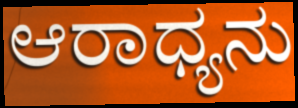
ಆರಾಧ್ಯನು